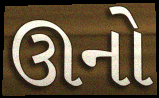
ઊનો